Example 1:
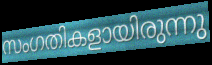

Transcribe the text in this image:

സംഗതികളായിരുന്നു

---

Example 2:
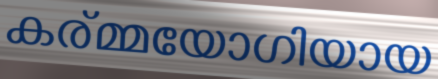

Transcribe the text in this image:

കര്മ്മയോഗിയായ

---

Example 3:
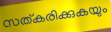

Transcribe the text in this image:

സത്കരിക്കുകയും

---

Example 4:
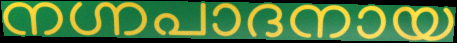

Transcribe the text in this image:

നഗ്നപാദനായ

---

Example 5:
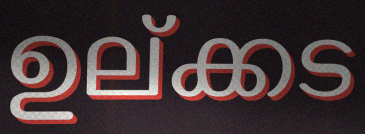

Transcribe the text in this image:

ഉല്ക്കട